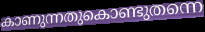
കാണുന്നതുകൊണ്ടുതന്നെ